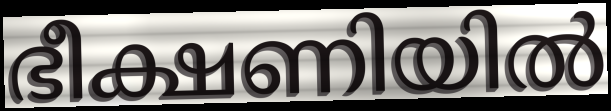
ഭീക്ഷണിയിൽ